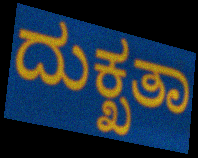
ದುಕ್ಖತಾ